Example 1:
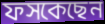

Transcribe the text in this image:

ফসকেছেন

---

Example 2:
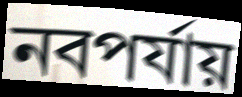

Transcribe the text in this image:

নবপর্যায়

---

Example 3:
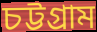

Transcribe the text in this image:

চট্টগ্রাম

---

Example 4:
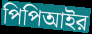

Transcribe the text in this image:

পিপিআইর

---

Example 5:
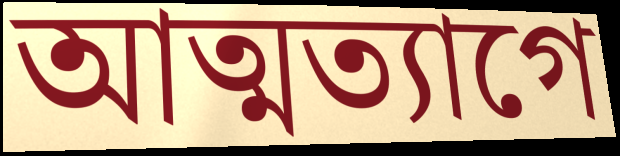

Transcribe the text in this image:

আত্মত্যাগে